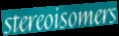
stereoisomers